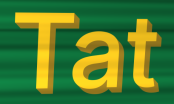
Tat